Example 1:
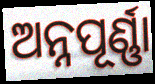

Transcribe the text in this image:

ଅନ୍ନପୂର୍ଣ୍ଣା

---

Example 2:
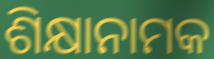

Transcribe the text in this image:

ଶିକ୍ଷାନାମକ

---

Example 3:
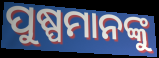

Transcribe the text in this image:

ପୁଷ୍ପମାନଙ୍କୁ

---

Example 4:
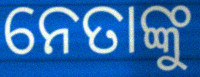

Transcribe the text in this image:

ନେତାଙ୍କୁ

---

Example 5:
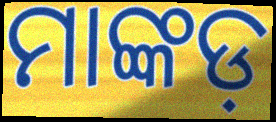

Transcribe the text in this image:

ମାଙ୍କଡ଼